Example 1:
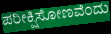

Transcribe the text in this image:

ಪರೀಕ್ಷಿಸೋಣವೆಂದು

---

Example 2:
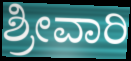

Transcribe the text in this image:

ಶ್ರೀವಾರಿ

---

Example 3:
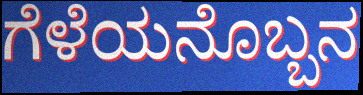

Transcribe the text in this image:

ಗೆಳೆಯನೊಬ್ಬನ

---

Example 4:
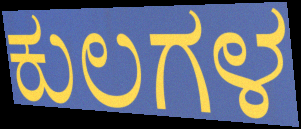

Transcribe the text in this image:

ಕುಲಗಳ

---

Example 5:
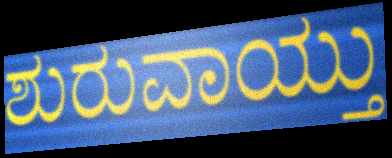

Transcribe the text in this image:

ಶುರುವಾಯ್ತು